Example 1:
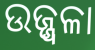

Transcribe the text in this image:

ଉଜ୍ଜ୍ୱଳା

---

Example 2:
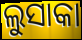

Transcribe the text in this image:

ଲୁସାକା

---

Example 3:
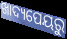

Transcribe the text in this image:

ଖାଦ୍ୟପେୟରୁ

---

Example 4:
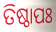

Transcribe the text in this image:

ତିଷ୍ଠାପଃ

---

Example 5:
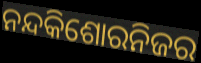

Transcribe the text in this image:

ନନ୍ଦକିଶୋରନିଜର